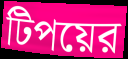
টিপয়ের